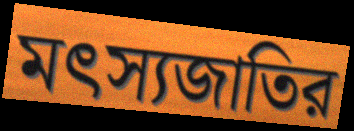
মৎস্যজাতির